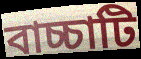
বাচ্চাটি